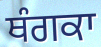
ਥੰਗਕਾ